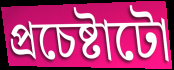
প্ৰচেষ্টাটো